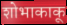
शोभाकाकू